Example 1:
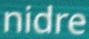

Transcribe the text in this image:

nidre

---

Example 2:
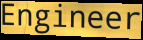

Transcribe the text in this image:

Engineer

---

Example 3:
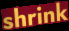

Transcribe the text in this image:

shrink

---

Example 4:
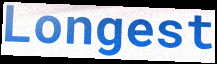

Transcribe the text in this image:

Longest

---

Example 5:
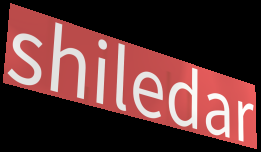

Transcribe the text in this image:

shiledar